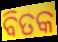
ବିତକ